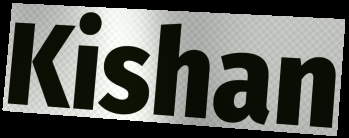
Kishan